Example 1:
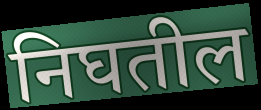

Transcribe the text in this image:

निघतील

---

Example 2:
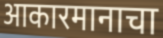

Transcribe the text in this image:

आकारमानाचा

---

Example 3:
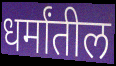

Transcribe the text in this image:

धर्मांतील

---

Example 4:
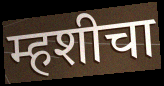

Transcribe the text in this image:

म्हशीचा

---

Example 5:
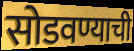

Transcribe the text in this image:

सोडवण्याची